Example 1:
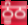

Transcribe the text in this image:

ਠੂੰਠ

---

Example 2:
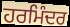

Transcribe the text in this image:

ਹਰਮਿੰਦਰ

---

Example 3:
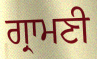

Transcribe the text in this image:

ਗ੍ਰਾਮਣੀ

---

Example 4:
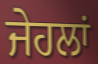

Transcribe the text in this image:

ਜੇਹਲਾਂ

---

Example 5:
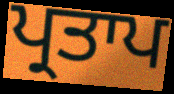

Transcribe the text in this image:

ਪ੍ਰਤਾਪ